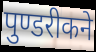
पुण्डरीकने